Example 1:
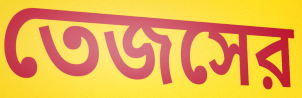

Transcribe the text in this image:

তেজসের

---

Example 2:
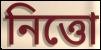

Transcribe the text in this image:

নিত্তো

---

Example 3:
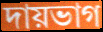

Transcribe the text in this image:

দায়ভাগ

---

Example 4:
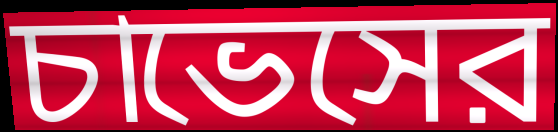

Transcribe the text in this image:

চাভেসের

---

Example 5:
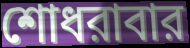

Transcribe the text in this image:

শোধরাবার